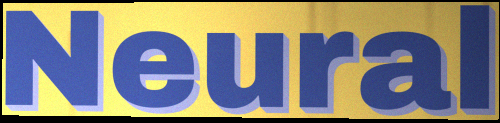
Neural